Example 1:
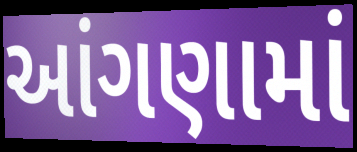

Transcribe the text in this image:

આંગણામાં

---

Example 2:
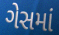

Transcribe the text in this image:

ગેસમાં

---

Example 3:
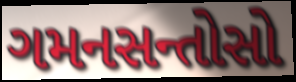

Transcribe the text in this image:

ગમનસન્તોસો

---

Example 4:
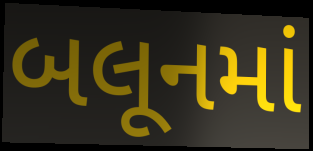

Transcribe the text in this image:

બલૂનમાં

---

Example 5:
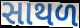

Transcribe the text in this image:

સાથળ